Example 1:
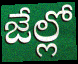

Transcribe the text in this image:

జేల్లో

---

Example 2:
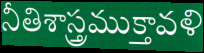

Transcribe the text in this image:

నీతిశాస్త్రముక్తావళి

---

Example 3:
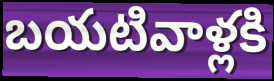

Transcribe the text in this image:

బయటివాళ్లకి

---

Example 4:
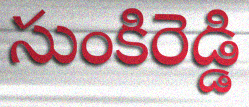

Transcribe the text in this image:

సుంకిరెడ్డి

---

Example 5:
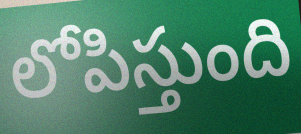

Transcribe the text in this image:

లోపిస్తుంది